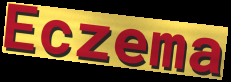
Eczema